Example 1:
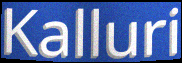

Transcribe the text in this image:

Kalluri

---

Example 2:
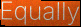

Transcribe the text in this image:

Equally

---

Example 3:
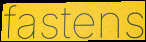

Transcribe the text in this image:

fastens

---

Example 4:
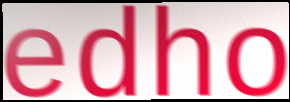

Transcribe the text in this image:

edho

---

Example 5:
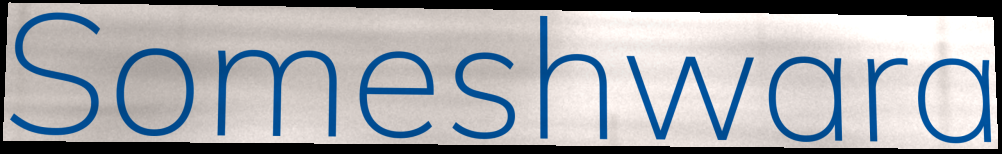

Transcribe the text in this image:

Someshwara